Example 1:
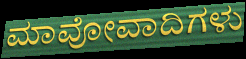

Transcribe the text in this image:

ಮಾವೋವಾದಿಗಳು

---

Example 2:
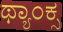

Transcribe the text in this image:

ಥ್ಯಾಂಕ್ಸ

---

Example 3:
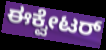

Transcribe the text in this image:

ಈಕ್ವೇಟರ್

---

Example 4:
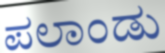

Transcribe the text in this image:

ಪಲಾಂಡು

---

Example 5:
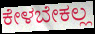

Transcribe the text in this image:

ಕೇಳಬೇಕಲ್ಲ